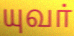
யுவர்